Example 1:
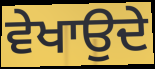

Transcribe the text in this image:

ਵੇਖਾਉਦੇ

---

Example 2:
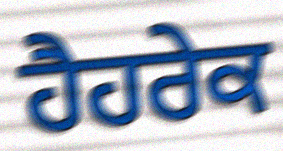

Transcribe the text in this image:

ਹੈਹਰੇਕ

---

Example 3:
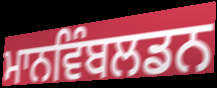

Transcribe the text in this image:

ਮਾਨਵਿੰਬਲਡਨ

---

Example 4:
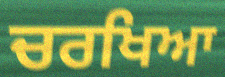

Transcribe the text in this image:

ਚਰਖਿਆ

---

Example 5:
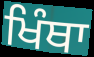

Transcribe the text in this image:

ਖਿੰਥਾ